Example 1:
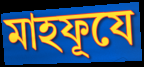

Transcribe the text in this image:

মাহফূযে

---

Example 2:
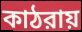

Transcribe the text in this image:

কাঠরায়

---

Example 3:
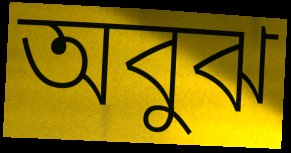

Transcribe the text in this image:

অবুঝ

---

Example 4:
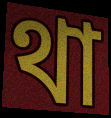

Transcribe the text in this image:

থা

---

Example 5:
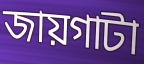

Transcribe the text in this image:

জায়গাটা